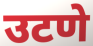
उटणे